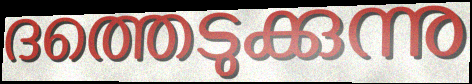
ദത്തെടുക്കുന്നു